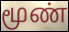
மூண்